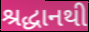
શ્રદ્ધાનથી